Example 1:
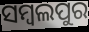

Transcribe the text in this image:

ସମ୍ବଲପୁର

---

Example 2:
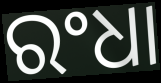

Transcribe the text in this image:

ରଂଧା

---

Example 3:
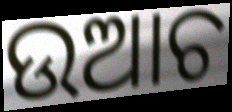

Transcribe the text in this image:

ଉଆଚ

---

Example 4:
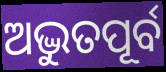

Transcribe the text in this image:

ଅଦ୍ଭୁତପୂର୍ବ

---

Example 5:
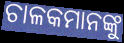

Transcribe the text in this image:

ଚାଳକମାନଙ୍କୁ